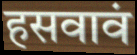
हसवावं